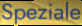
Speziale